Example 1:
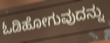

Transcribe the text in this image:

ಓಡಿಹೋಗುವುದನ್ನು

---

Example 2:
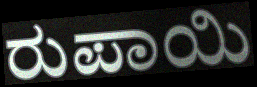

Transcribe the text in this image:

ರುಪಾಯಿ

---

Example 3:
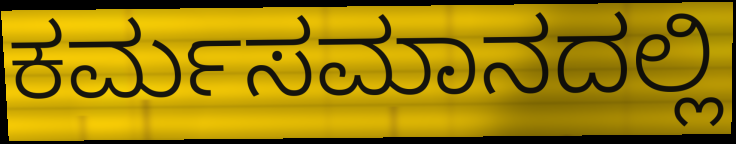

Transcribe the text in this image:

ಕರ್ಮಸಮಾನದಲ್ಲಿ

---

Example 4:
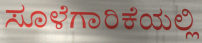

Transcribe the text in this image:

ಸೂಳೆಗಾರಿಕೆಯಲ್ಲಿ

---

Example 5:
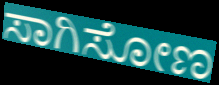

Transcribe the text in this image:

ಸಾಗಿಸೋಣ